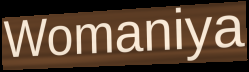
Womaniya